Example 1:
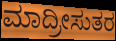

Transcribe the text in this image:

ಮಾದ್ರೀಸುತರ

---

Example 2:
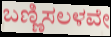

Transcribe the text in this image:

ಬಣ್ಣಿಸಲಳವೇ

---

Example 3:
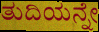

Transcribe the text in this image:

ತುದಿಯನ್ನೇ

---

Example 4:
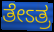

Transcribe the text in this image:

ತೇಽತ್ರ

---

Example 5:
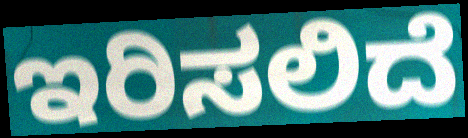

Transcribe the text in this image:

ಇರಿಸಲಿದೆ